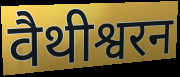
वैथीश्वरन